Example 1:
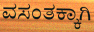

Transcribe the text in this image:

ವಸಂತಕ್ಕಾಗಿ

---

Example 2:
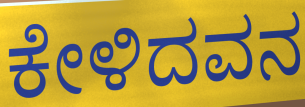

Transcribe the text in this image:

ಕೇಳಿದವನ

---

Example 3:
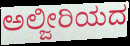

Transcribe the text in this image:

ಅಲ್ಜೀರಿಯದ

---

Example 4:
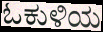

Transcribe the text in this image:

ಓಕುಳಿಯ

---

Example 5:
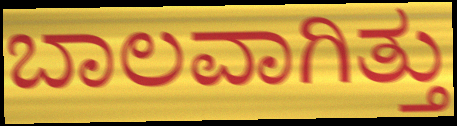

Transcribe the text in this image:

ಬಾಲವಾಗಿತ್ತು